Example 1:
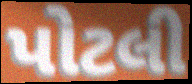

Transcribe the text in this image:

પોટલી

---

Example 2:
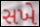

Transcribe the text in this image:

સખે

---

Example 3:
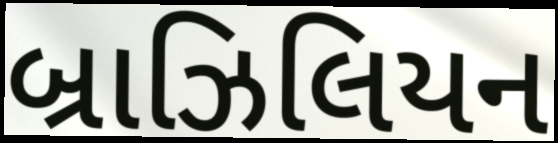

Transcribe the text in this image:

બ્રાઝિલિયન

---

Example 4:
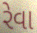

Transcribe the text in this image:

રેવા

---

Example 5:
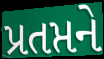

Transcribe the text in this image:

પ્રતપ્તને